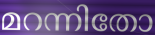
മറന്നിതോ